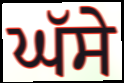
ਘੱਸੇ